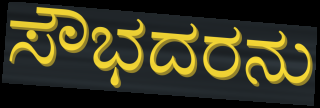
ಸೌಭದರನು